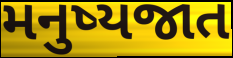
મનુષ્યજાત